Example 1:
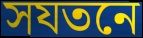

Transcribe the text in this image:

সযতনে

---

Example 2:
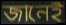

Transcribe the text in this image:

জানেই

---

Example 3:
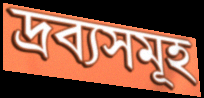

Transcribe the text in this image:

দ্ৰব্যসমূহ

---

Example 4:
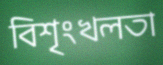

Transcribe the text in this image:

বিশৃংখলতা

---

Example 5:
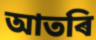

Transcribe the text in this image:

আতৰি